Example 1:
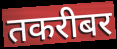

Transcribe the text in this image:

तकरीबर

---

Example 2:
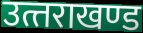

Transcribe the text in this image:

उत्‍तराखण्‍ड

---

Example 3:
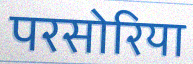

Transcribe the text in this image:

परसोरिया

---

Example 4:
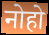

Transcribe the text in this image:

नोहो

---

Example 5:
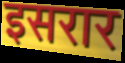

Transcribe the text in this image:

इसरार